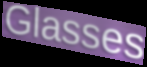
Glasses